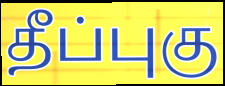
தீப்புகு